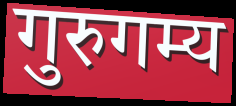
गुरुगम्य